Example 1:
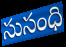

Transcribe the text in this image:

సుసంధి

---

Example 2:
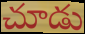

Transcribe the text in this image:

చూడు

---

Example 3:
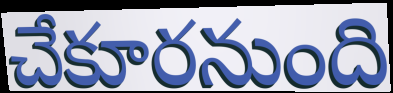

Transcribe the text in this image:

చేకూరనుంది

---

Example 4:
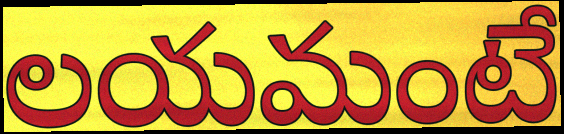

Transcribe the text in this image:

లయమంటే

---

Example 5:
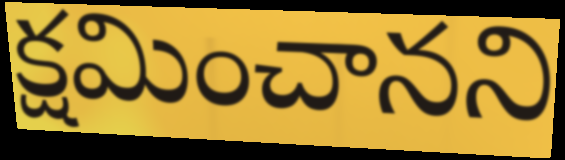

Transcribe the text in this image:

క్షమించానని